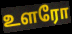
உளரோ